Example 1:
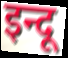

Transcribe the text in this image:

इन्दू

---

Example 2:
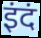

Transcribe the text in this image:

इंदं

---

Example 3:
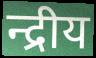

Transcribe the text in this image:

न्द्रीय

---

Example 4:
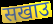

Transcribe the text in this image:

सखाउ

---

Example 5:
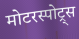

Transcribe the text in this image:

मोटरस्पोट्र्स